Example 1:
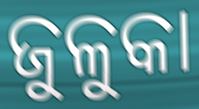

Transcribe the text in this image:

ଜୁଳୁକା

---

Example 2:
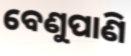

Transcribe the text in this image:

ବେଣୁପାଣି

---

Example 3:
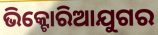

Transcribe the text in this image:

ଭିକ୍ଟୋରିଆଯୁଗର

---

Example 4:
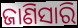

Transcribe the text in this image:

ଜାଣିସାରି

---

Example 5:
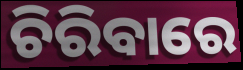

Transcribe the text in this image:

ଚିରିବାରେ